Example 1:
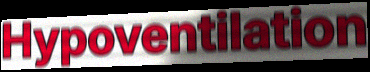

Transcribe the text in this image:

Hypoventilation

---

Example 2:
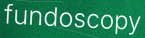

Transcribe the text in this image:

fundoscopy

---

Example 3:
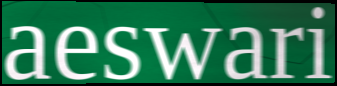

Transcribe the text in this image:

aeswari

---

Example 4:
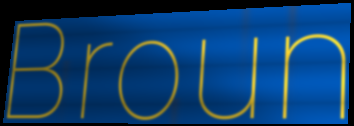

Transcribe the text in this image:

Broun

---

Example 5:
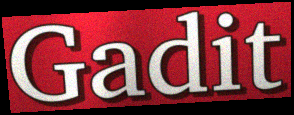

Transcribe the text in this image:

Gadit